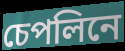
চেপলিনে